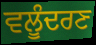
ਵਲੂੰਦਰਣ